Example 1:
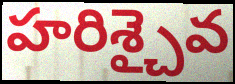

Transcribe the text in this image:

హరిశ్చైవ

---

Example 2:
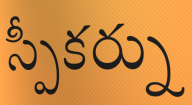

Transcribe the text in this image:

స్పీకర్ను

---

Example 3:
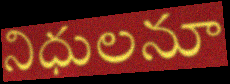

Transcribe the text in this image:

నిధులనూ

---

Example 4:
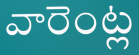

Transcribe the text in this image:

వారెంట్ల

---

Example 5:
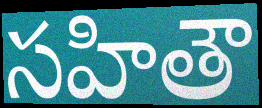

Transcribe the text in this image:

సహితౌ